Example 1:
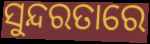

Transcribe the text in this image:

ସୁନ୍ଦରତାରେ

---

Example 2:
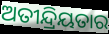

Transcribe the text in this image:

ଅତୀନ୍ଦ୍ରିୟତାର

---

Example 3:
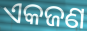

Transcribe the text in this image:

ଏକଜଣ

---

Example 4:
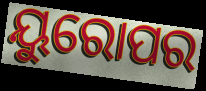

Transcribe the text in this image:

ୟୁରୋପର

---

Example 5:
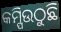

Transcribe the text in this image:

କମ୍ପିଉଠୁଛି